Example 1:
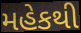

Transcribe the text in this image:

મહેકથી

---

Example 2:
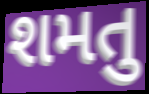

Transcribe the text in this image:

શમતુ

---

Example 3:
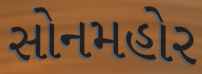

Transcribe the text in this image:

સોનમહોર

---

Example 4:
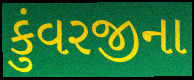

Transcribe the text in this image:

કુંવરજીના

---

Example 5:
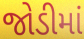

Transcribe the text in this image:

જોડીમાં